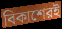
বিকাশেরই